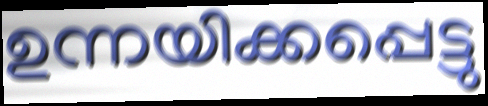
ഉന്നയിക്കപ്പെട്ടു